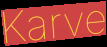
Karve